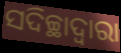
ସଦିଚ୍ଛାଦ୍ୱାରା